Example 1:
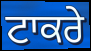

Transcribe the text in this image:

ਟਾਕਰੇ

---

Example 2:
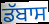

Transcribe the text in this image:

ਡੱਬਾਸ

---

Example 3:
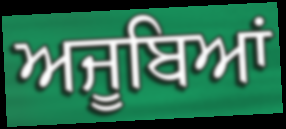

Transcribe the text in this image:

ਅਜੂਬਿਆਂ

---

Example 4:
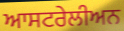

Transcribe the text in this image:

ਆਸਟਰੇਲੀਅਨ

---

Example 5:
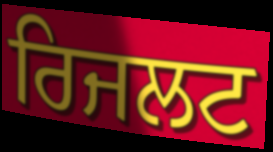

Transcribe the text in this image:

ਰਿਜਲਟ